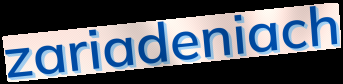
zariadeniach